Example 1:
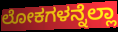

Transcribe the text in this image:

ಲೋಕಗಳನ್ನೆಲ್ಲಾ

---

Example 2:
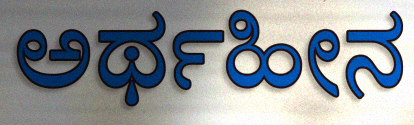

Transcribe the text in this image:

ಅರ್ಥಹೀನ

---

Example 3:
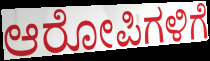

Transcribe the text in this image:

ಆರೋಪಿಗಳಿಗೆ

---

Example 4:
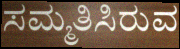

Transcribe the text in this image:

ಸಮ್ಮತಿಸಿರುವ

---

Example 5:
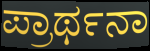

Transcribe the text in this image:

ಪ್ರಾರ್ಥನಾ